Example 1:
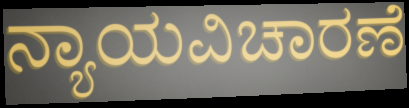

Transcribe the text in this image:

ನ್ಯಾಯವಿಚಾರಣೆ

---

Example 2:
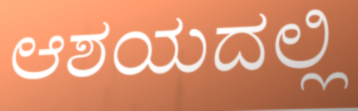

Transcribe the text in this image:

ಆಶಯದಲ್ಲಿ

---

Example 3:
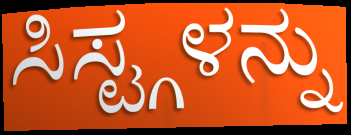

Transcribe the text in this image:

ಸಿಸ್ಟ್ಗಳನ್ನು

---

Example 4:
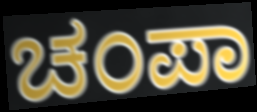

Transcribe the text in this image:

ಚಂಪಾ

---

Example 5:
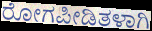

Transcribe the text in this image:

ರೋಗಪೀಡಿತಳಾಗಿ